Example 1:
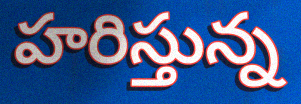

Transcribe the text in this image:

హరిస్తున్న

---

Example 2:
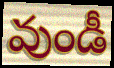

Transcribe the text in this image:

వుండీ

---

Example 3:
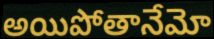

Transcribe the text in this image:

అయిపోతానేమో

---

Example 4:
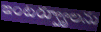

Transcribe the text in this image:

ఇంటర్వ్యూలను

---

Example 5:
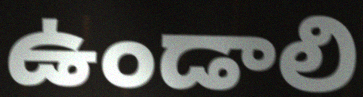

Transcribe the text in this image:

ఉండాలి